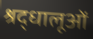
श्रद्धालूओं